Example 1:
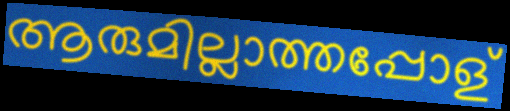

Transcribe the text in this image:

ആരുമില്ലാത്തപ്പോള്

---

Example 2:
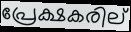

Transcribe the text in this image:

പ്രേക്ഷകരില്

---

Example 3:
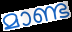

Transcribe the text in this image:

മാണ്ട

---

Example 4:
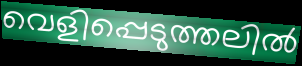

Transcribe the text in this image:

വെളിപ്പെടുത്തലിൽ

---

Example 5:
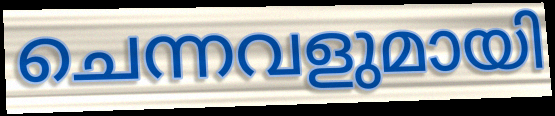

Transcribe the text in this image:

ചെന്നവളുമായി